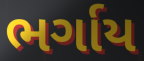
ભર્ગાય